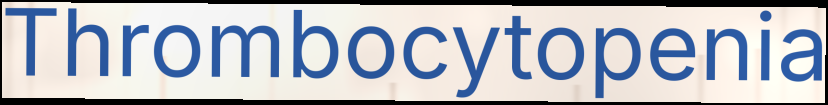
Thrombocytopenia